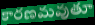
కారణమవుతూ